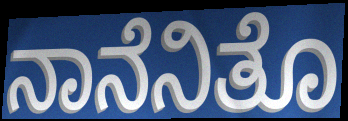
ನಾನೆನಿತೊ